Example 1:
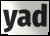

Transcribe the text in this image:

yad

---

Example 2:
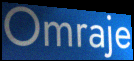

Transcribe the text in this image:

Omraje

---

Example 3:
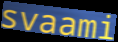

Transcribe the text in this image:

svaami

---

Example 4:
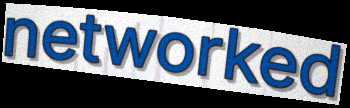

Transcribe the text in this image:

networked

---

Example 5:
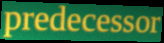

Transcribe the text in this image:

predecessor